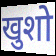
खुशो